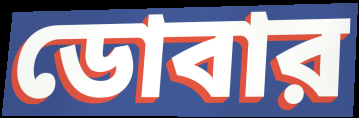
ডোবার